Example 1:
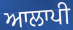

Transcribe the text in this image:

ਆਲਾਪੀ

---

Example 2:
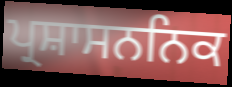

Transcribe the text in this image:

ਪ੍ਰਸ਼ਾਸਨਨਿਕ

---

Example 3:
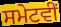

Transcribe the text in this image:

ਸਮੇਟਵੀਂ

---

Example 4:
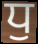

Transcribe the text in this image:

ਧੁ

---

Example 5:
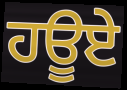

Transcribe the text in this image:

ਹਊਏ